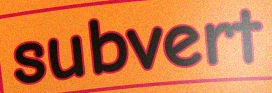
subvert